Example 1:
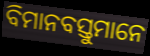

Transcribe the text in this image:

ବିମାନବସ୍ତୁମାନେ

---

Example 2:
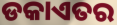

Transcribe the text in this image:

ଡକାଏତର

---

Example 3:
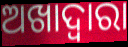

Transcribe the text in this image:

ଅଖାଦ୍ୱାରା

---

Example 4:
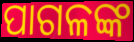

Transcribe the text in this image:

ପାଗଳଙ୍କ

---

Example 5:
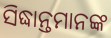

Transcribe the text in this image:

ସିଦ୍ଧାନ୍ତମାନଙ୍କ